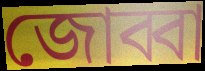
জোব্বা